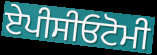
ਏਪੀਸੀਓਟੋਮੀ